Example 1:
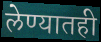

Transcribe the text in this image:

लेण्यातही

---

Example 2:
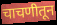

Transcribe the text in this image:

चाचणीतून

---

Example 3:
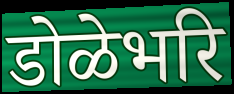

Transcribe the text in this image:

डोळेभरि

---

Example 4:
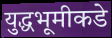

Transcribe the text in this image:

युद्धभूमीकडे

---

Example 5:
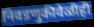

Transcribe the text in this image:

निवडणुकीवेळीही